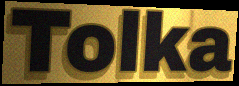
Tolka